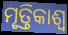
ମୃତ୍ତିକାଶ୍ୱ